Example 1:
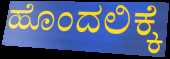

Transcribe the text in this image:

ಹೊಂದಲಿಕ್ಕೆ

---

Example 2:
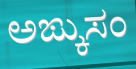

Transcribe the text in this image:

ಅಙ್ಕುಸಂ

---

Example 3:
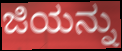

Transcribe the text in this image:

ಜಿಯನ್ನು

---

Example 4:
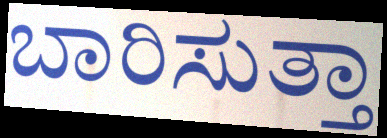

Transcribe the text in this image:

ಬಾರಿಸುತ್ತಾ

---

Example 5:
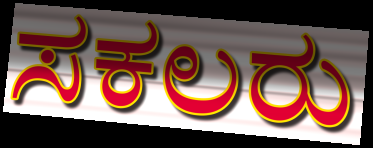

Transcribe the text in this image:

ಸಕಲರು